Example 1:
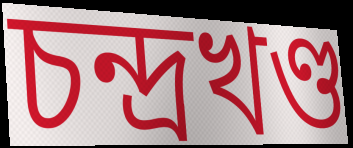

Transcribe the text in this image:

চন্দ্রখণ্ড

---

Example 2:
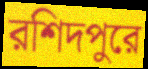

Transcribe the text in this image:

রশিদপুরে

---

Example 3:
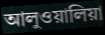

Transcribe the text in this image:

আলুওয়ালিয়া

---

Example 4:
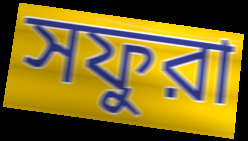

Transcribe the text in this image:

সফুরা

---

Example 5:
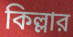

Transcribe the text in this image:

কিল্লার